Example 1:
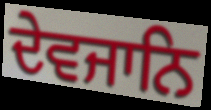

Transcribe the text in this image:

ਦੇਵਜਾਨਿ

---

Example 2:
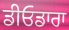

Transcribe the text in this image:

ਡੀਓਡਾਰਾ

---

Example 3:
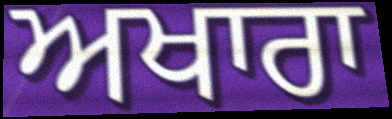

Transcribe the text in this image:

ਅਖਾਰਾ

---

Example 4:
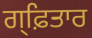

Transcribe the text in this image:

ਗ੍ਫ਼ਿਤਾਰ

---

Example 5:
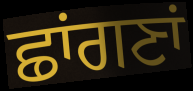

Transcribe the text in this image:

ਛਾਂਗਣਾਂ